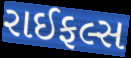
રાઈફલ્સ